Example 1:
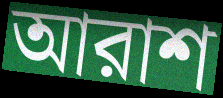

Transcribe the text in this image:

আরাশ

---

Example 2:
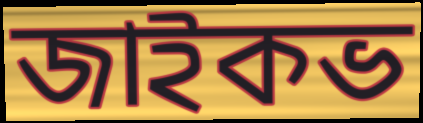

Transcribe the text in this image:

জাইকভ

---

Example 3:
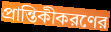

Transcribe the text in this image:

প্রান্তিকীকরণের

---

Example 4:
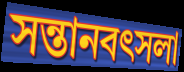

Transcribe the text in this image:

সন্তানবৎসলা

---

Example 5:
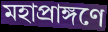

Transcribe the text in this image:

মহাপ্রাঙ্গণে